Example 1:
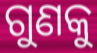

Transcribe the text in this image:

ଗୁଣକୁ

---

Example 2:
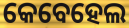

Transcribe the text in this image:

କେବେହେଲ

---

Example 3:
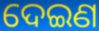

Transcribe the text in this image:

ଦେଇଣ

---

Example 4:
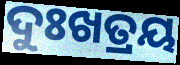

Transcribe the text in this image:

ଦୁଃଖତ୍ରୟ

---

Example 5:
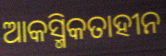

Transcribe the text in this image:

ଆକସ୍ମିକତାହୀନ